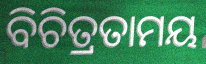
ବିଚିତ୍ରତାମୟ